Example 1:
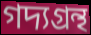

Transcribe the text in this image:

গদ্যগ্রন্থ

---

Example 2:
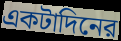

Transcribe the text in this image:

একটাদিনের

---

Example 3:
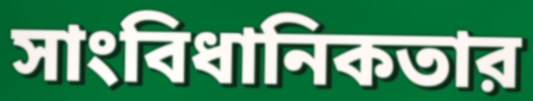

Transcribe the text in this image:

সাংবিধানিকতার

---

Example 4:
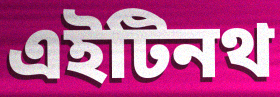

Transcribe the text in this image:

এইটিনথ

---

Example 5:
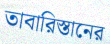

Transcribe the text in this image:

তাবারিস্তানের